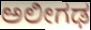
ಅಲೀಗಢ